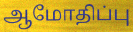
ஆமோதிப்பு